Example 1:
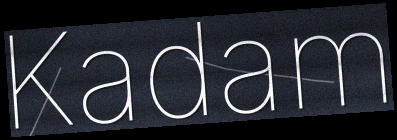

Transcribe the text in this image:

Kadam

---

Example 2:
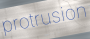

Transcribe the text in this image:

protrusion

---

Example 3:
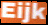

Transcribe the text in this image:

Eijk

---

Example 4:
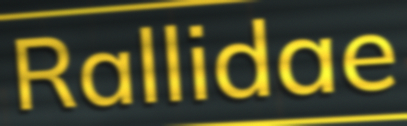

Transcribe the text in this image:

Rallidae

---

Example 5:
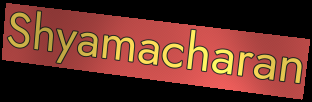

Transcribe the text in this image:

Shyamacharan